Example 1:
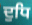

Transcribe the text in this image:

ਦੁਧਿ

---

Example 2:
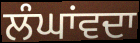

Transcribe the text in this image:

ਲੰਘਾਂਵਦਾ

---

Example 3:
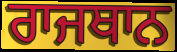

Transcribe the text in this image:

ਰਾਜਥਾਨ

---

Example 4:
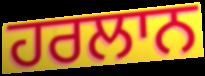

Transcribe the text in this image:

ਹਰਲਾਨ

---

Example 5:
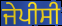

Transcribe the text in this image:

ਜੇਪੀਸੀ